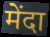
मेंदा